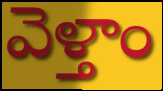
వెళ్తాం